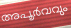
അപൂർവവും